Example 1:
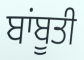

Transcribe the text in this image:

ਬਾਂਬੂਤੀ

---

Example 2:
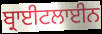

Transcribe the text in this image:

ਬ੍ਰਾਈਟਲਾਈਨ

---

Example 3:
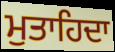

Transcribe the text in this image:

ਮੁਤਾਹਿਦਾ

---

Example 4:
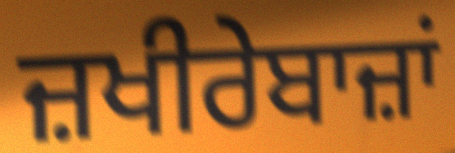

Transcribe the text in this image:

ਜ਼ਖੀਰੇਬਾਜ਼ਾਂ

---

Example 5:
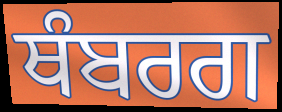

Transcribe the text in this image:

ਥੰਬਰਗ